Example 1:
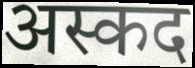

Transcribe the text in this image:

अस्कद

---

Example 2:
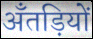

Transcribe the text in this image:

अँतड़ियों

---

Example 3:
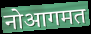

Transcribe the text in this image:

नोआगमत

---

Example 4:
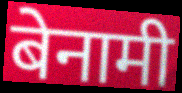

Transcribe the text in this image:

बेनामी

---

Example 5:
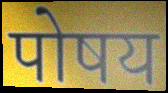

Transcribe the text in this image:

पोषय